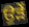
ਉੜੇਂ